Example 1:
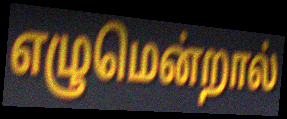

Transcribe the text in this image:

எழுமென்றால்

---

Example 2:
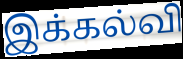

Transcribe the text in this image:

இக்கல்வி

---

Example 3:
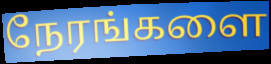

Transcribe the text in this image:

நேரங்களை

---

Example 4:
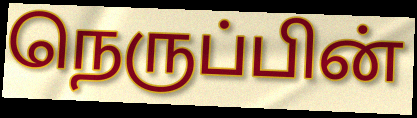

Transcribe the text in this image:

நெருப்பின்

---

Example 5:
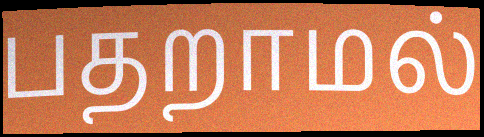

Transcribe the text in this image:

பதறாமல்